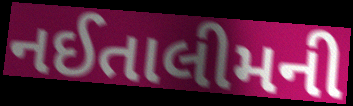
નઈતાલીમની